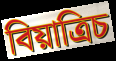
বিয়াত্রিচ